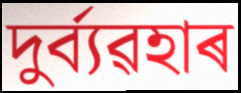
দুৰ্ব্যৱহাৰ